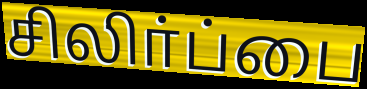
சிலிர்ப்பை